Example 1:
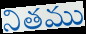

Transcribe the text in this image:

నితము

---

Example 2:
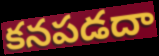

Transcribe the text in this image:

కనపడదా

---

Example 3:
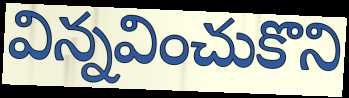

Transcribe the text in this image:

విన్నవించుకొని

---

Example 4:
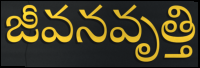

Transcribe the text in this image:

జీవనవృత్తి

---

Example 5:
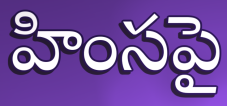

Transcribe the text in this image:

హింసపై